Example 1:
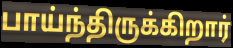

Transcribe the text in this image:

பாய்ந்திருக்கிறார்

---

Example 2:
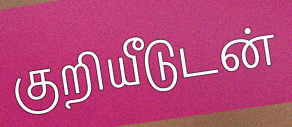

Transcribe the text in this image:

குறியீடுடன்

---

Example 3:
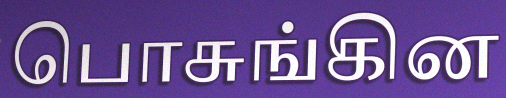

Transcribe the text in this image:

பொசுங்கின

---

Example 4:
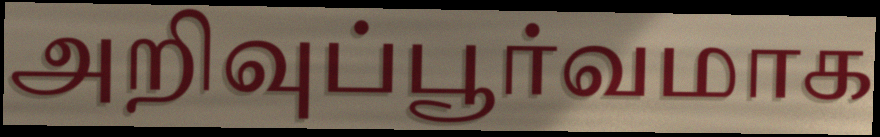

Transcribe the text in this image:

அறிவுப்பூர்வமாக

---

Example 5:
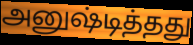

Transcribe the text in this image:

அனுஷ்டித்தது